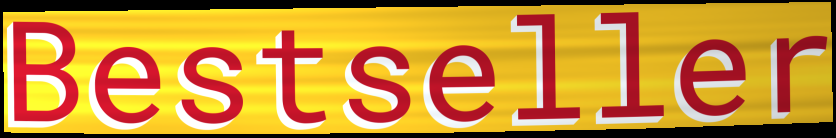
Bestseller